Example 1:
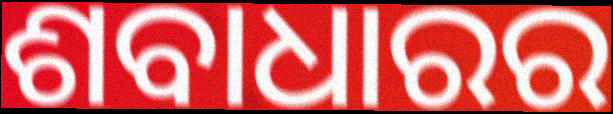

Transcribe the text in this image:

ଶବାଧାରର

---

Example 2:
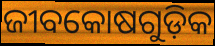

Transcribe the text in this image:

ଜୀବକୋଷଗୁଡ଼ିକ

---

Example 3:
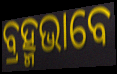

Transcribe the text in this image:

ବ୍ରହ୍ମଭାବେ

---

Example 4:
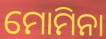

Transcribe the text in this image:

ମୋମିନା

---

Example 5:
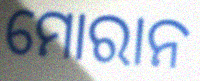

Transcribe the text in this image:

ମୋରାନ